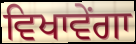
ਵਿਖਾਵੇਂਗਾ